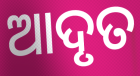
ଆଦୃତ